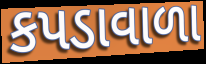
કપડાવાળા